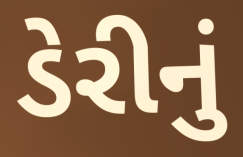
ડેરીનું